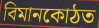
বিমানকোঠত